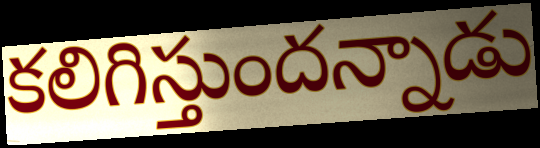
కలిగిస్తుందన్నాడు